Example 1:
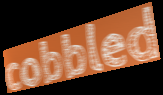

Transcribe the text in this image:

cobbled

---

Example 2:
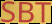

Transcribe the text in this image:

SBT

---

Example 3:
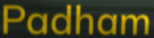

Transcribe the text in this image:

Padham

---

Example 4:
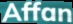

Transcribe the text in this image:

Affan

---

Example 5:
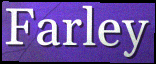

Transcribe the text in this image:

Farley